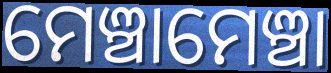
ମେଞ୍ଚାମେଞ୍ଚା